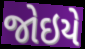
જોઇયે